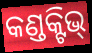
କଣ୍ଡକ୍ଟିଭ୍